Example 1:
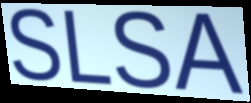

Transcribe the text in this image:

SLSA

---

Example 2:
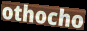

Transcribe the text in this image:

othocho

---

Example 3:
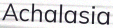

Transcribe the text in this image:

Achalasia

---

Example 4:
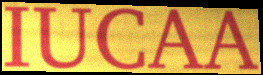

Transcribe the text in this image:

IUCAA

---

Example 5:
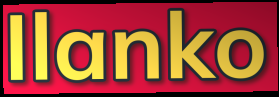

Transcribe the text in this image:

Ilanko